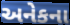
અનેકના